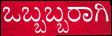
ಒಬ್ಬಬ್ಬರಾಗಿ